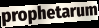
prophetarum